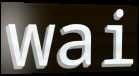
wai